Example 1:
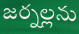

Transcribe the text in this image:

జర్నల్లను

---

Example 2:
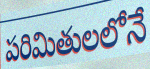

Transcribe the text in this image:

పరిమితులలోనే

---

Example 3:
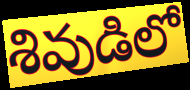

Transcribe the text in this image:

శివుడిలో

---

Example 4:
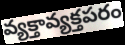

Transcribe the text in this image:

వ్యక్తావ్యక్తపరం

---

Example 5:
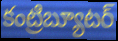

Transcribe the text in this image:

కంట్రిబ్యూటర్